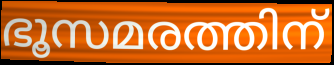
ഭൂസമരത്തിന്